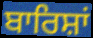
ਬਾਰਿਸ਼ਾਂ